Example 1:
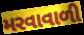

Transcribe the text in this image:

મરવાવાળી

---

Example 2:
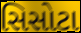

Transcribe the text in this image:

સિસોટા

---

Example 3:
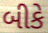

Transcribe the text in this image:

બીકે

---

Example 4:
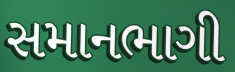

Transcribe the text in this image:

સમાનભાગી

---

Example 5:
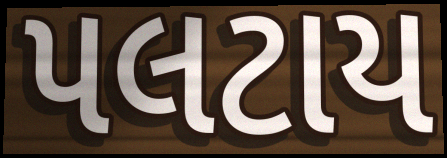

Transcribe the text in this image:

પલટાય